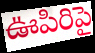
ఊపిరిపై